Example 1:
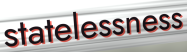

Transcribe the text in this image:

statelessness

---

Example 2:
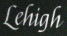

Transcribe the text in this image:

Lehigh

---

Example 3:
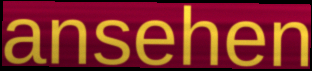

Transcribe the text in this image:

ansehen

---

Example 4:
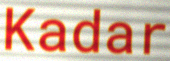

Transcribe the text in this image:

Kadar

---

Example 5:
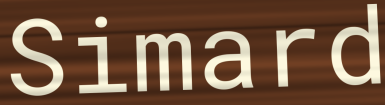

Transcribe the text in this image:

Simard